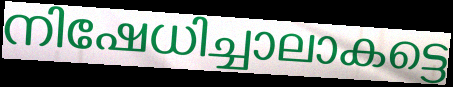
നിഷേധിച്ചാലാകട്ടെ